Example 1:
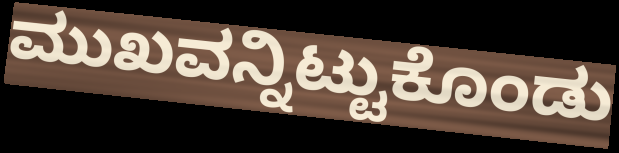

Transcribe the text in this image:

ಮುಖವನ್ನಿಟ್ಟುಕೊಂಡು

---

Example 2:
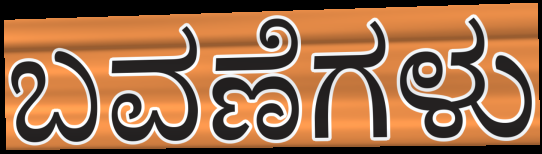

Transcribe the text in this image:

ಬವಣೆಗಳು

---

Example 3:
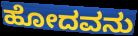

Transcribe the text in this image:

ಹೋದವನು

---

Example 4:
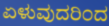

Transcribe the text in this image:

ಏಳುವುದರಿಂದ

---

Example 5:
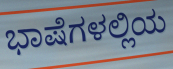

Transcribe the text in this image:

ಭಾಷೆಗಳಲ್ಲಿಯ